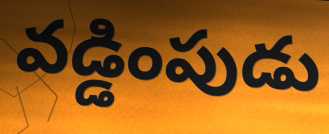
వడ్డింపుడు